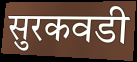
सुरकवडी